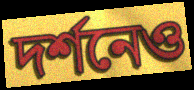
দর্শনেও